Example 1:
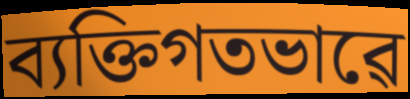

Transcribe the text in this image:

ব্যক্তিগতভাৱে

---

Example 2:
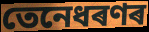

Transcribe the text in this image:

তেনেধৰণৰ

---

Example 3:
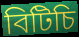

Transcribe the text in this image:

বিটিচি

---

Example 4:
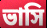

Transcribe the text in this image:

ভাসি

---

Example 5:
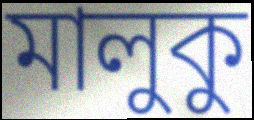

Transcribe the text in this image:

মালুকু